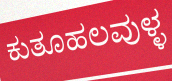
ಕುತೂಹಲವುಳ್ಳ